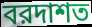
বরদাশত